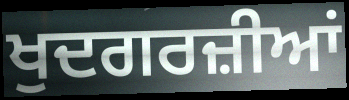
ਖੁਦਗਰਜ਼ੀਆਂ